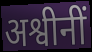
अश्वीनीं